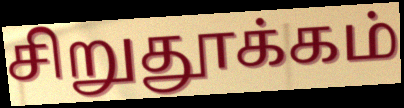
சிறுதூக்கம்